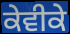
ਕੇਵੀਕੇ